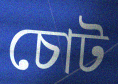
চোট